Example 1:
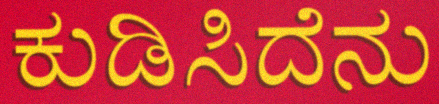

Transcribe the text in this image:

ಕುಡಿಸಿದೆನು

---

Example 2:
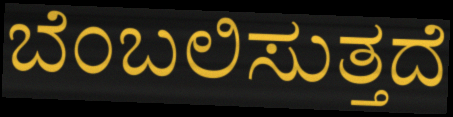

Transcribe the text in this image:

ಬೆಂಬಲಿಸುತ್ತದೆ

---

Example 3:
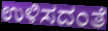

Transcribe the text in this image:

ಉಳಿಸದಂತೆ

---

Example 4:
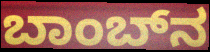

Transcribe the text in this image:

ಬಾಂಬ್‍ನ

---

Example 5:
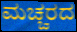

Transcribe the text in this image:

ಮಚ್ಚರದ